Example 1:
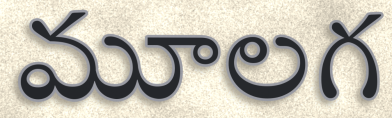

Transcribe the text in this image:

మూలగ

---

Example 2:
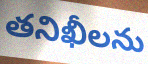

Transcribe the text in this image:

తనిఖీలను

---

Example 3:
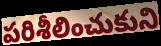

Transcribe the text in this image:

పరిశీలించుకుని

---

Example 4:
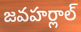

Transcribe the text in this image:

జవహర్లాల్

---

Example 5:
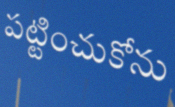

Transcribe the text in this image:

పట్టించుకోను